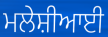
ਮਲੇਸ਼ੀਆਈ